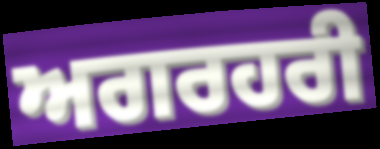
ਅਗਰਹਰੀ